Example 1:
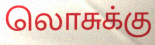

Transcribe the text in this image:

லொசுக்கு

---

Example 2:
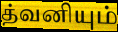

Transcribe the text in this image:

த்வனியும்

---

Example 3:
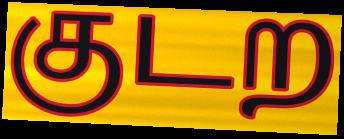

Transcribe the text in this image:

குடற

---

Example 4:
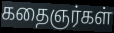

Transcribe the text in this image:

கதைஞர்கள்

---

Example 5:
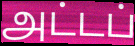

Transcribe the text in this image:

அட்டப்